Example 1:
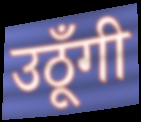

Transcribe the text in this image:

उठूँगी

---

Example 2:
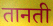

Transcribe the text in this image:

तानती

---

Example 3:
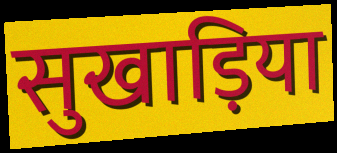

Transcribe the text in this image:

सुखाड़िया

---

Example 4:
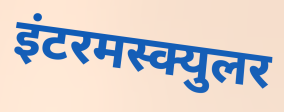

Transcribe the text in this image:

इंटरमस्क्युलर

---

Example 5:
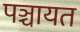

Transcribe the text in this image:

पञ्चायत